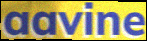
aavine